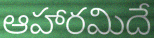
ఆహారమిదే